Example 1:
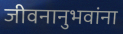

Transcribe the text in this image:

जीवनानुभवांना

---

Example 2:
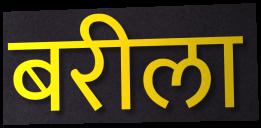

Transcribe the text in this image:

बरीला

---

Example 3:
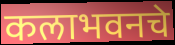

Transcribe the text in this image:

कलाभवनचे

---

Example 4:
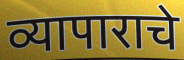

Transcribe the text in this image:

व्यापाराचे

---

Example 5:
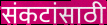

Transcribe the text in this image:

संकटांसाठी